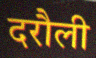
दरौली